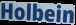
Holbein